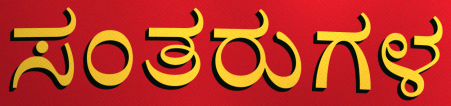
ಸಂತರುಗಳ